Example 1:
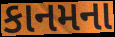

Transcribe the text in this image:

કાનમના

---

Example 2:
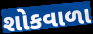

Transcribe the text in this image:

શોકવાળા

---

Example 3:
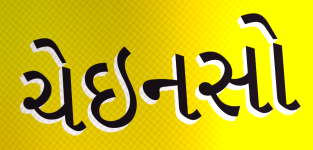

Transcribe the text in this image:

ચેઇનસો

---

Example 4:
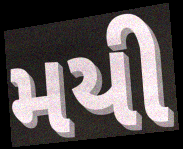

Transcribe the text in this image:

મયી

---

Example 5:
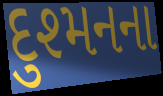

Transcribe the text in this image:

દુશ્મનના